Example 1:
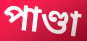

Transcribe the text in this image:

পাণ্ডা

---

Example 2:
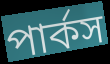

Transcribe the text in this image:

পার্কস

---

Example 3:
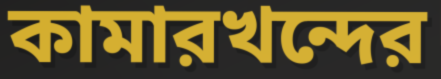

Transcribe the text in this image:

কামারখন্দের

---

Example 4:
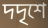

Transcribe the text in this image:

দদৃশে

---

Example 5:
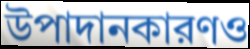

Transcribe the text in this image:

উপাদানকারণও